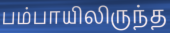
பம்பாயிலிருந்த